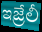
ఇజ్రేలీ